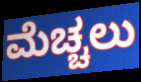
ಮೆಚ್ಚಲು